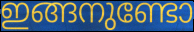
ഇങ്ങനുണ്ടോ